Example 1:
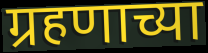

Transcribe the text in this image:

ग्रहणाच्या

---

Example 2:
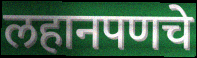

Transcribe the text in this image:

लहानपणचे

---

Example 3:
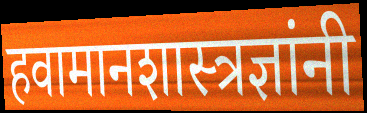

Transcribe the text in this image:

हवामानशास्त्रज्ञांनी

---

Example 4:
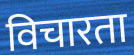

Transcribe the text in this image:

विचारता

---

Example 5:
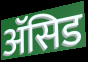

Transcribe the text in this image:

ॲसिड